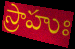
స్రాహుః